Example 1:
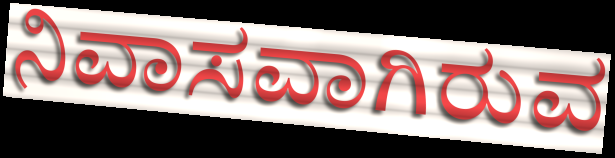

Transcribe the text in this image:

ನಿವಾಸವಾಗಿರುವ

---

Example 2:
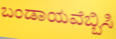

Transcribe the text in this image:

ಬಂಡಾಯವೆಬ್ಬಿಸಿ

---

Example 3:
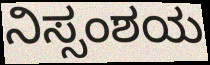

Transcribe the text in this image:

ನಿಸ್ಸಂಶಯ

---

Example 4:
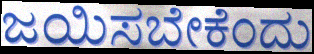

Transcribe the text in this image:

ಜಯಿಸಬೇಕೆಂದು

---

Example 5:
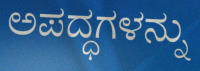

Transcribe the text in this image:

ಅಪದ್ಧಗಳನ್ನು